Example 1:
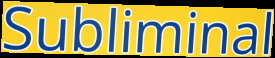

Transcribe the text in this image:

Subliminal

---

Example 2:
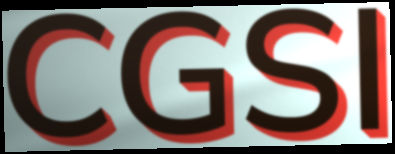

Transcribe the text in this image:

CGSI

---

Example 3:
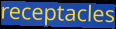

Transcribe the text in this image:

receptacles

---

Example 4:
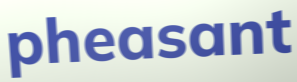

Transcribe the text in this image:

pheasant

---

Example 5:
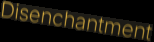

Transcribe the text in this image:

Disenchantment